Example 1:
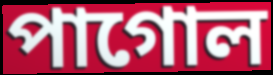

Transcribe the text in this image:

পাগোল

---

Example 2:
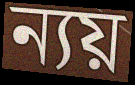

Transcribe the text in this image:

ন্যয়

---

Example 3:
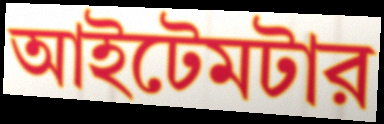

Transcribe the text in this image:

আইটেমটার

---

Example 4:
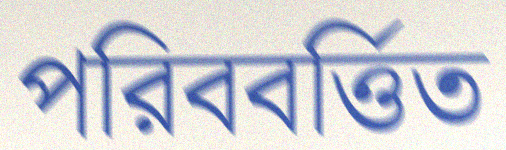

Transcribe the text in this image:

পরিববর্ত্তিত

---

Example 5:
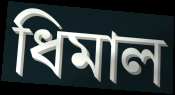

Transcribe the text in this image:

ধিমাল